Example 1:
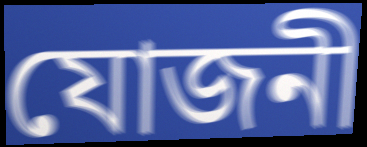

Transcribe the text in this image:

যোজনী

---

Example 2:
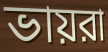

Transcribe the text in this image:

ভায়রা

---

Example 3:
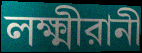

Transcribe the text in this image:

লক্ষ্মীরানী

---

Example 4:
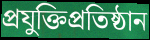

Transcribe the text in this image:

প্রযুক্তিপ্রতিষ্ঠান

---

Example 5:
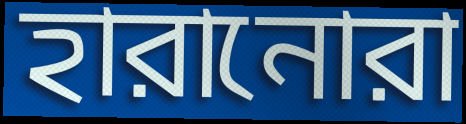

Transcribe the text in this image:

হারানোরা